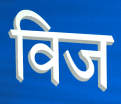
विज